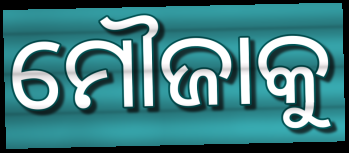
ମୌଜାକୁ